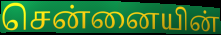
சென்னையின்